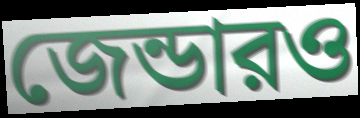
জেন্ডারও